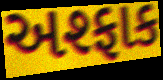
અશ્ફાક